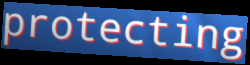
protecting